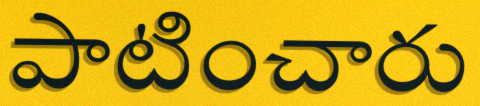
పాటించారు